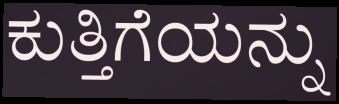
ಕುತ್ತಿಗೆಯನ್ನು